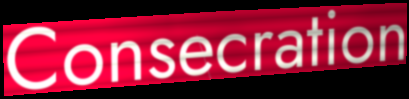
Consecration